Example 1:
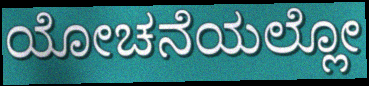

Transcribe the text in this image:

ಯೋಚನೆಯಲ್ಲೋ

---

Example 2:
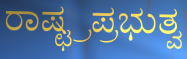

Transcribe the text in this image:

ರಾಷ್ಟ್ರಪ್ರಭುತ್ವ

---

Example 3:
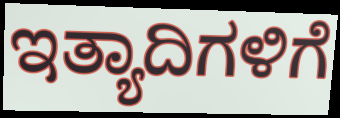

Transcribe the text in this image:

ಇತ್ಯಾದಿಗಳಿಗೆ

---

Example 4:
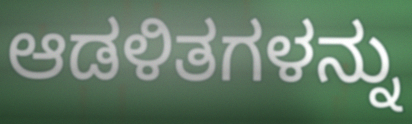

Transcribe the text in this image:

ಆಡಳಿತಗಳನ್ನು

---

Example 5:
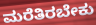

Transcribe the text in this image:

ಮರೆತಿರಬೇಕು